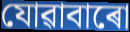
যোৱাবাৰো